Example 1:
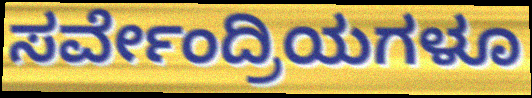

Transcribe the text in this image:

ಸರ್ವೇಂದ್ರಿಯಗಳೂ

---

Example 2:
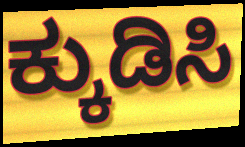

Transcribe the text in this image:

ಕ್ಕುಡಿಸಿ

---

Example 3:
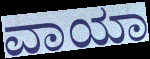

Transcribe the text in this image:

ವಾಯಾ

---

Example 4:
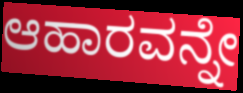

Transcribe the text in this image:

ಆಹಾರವನ್ನೇ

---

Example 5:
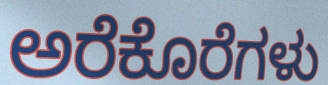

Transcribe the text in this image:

ಅರೆಕೊರೆಗಳು